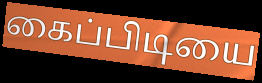
கைப்பிடியை